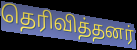
தெரிவித்தனர்